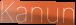
Kanun